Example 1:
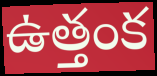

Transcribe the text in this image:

ఉత్తంక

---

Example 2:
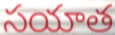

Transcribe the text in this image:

సయాత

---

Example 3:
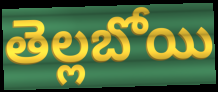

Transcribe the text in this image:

తెల్లబోయి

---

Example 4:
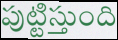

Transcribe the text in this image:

పుట్టిస్తుంది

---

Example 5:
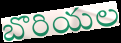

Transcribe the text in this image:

బొరియల